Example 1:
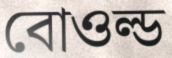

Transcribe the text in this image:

বোওল্ড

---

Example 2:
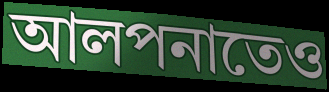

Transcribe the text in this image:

আলপনাতেও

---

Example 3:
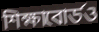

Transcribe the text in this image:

শিক্ষাবোর্ডও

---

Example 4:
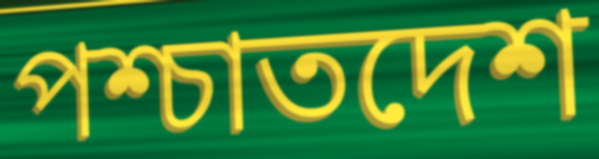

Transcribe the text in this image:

পশ্চাতদেশ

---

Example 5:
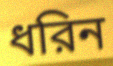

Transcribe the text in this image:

ধরিন